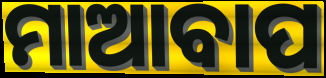
ମାଆବାପ